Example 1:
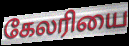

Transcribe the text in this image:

கேலரியை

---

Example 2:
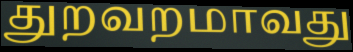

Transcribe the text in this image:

துறவறமாவது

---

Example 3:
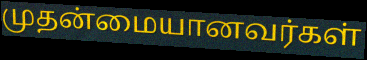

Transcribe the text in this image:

முதன்மையானவர்கள்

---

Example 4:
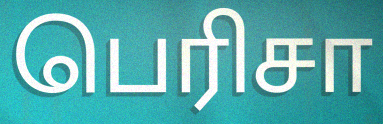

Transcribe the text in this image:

பெரிசா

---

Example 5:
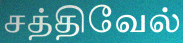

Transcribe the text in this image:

சத்திவேல்